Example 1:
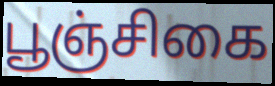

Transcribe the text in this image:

பூஞ்சிகை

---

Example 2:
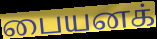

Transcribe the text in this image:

பையனக்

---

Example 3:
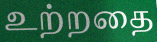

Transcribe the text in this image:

உற்றதை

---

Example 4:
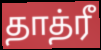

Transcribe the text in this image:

தாத்ரீ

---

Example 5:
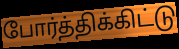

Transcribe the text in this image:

போர்த்திக்கிட்டு